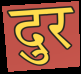
दुर